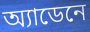
অ্যাডেনে